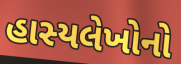
હાસ્યલેખોનો